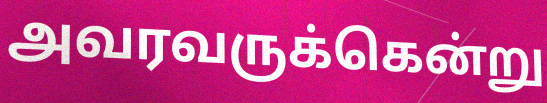
அவரவருக்கென்று